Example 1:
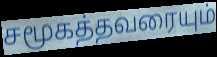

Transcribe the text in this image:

சமூகத்தவரையும்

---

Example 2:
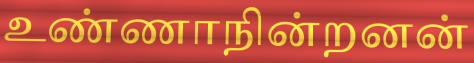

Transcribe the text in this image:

உண்ணாநின்றனன்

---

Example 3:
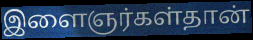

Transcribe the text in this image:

இளைஞர்கள்தான்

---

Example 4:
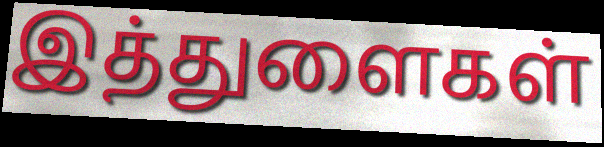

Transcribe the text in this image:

இத்துளைகள்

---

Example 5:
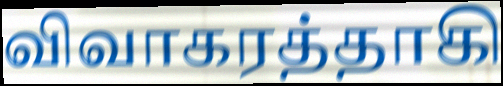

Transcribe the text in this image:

விவாகரத்தாகி